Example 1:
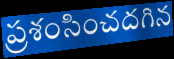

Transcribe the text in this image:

ప్రశంసించదగిన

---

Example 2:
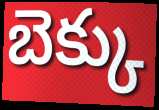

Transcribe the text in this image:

బెక్కు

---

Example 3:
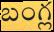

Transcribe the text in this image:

బంగ్ల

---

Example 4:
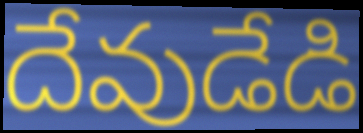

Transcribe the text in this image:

దేవుడేడి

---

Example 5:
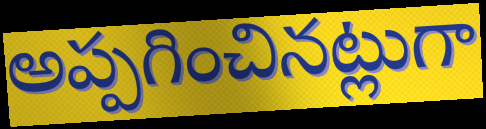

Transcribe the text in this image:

అప్పగించినట్లుగా